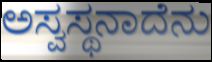
ಅಸ್ವಸ್ಥನಾದೆನು